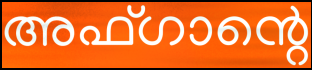
അഫ്ഗാന്റെ